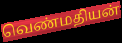
வெண்மதியன்